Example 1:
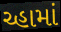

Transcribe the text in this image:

ચ્હામાં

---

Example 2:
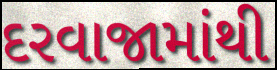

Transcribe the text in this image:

દરવાજામાંથી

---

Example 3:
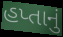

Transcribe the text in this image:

હપ્તાનું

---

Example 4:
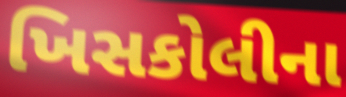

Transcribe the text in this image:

ખિસકોલીના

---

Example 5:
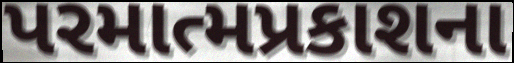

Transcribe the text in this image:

પરમાત્મપ્રકાશના